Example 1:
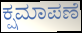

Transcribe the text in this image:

ಕ್ಷಮಾಪಣೆ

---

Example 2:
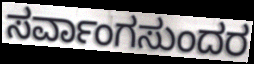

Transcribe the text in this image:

ಸರ್ವಾಂಗಸುಂದರ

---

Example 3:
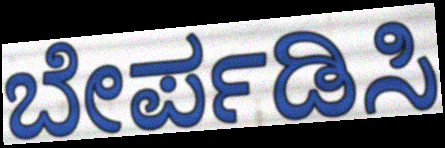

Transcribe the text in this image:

ಬೇರ್ಪಡಿಸಿ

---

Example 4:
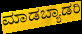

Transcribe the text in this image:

ಮಾಡಬ್ಯಾಡರಿ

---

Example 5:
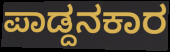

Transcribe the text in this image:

ಪಾಡ್ದನಕಾರ